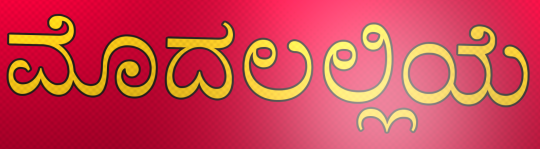
ಮೊದಲಲ್ಲಿಯೆ